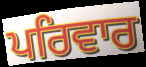
ਪਰਿਵਾਰ